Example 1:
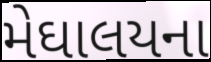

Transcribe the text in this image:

મેઘાલયના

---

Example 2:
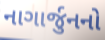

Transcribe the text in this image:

નાગાર્જુનનો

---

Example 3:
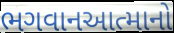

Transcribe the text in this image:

ભગવાનઆત્માનો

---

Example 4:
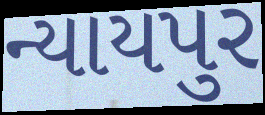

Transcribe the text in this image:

ન્યાયપુર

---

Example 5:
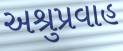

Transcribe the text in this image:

અશ્રુપ્રવાહ